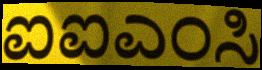
ಐಐಎಂಸಿ